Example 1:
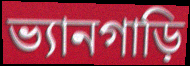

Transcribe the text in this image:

ভ্যানগাড়ি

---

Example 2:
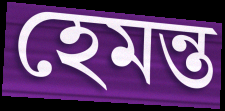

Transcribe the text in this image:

হেমন্ত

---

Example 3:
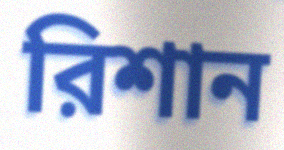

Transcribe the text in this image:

রিশান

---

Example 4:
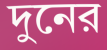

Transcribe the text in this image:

দুনের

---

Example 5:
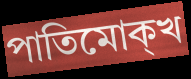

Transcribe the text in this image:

পাতিমোক্খ